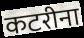
कटरीना